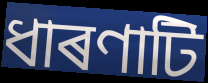
ধাৰণাটি